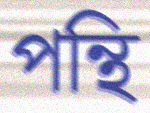
পন্থি